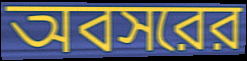
অবসরের